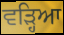
ਵੜ੍ਹਿਆ